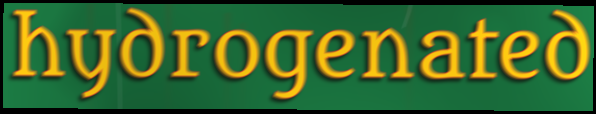
hydrogenated